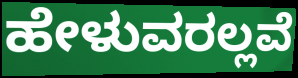
ಹೇಳುವರಲ್ಲವೆ